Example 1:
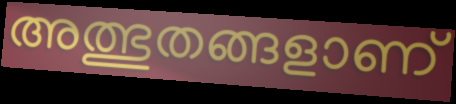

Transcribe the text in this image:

അത്ഭുതങ്ങളാണ്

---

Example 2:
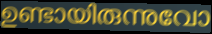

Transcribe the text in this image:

ഉണ്ടായിരുന്നുവോ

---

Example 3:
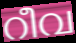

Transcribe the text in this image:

റീവ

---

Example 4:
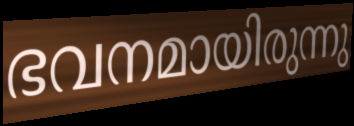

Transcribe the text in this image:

ഭവനമായിരുന്നു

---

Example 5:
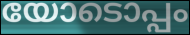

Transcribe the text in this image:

യോടൊപ്പം